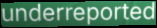
underreported